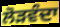
ਲੋੜਵੰਦਾ